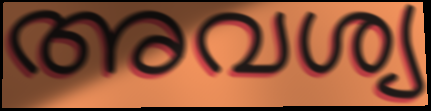
അവശ്യ